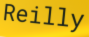
Reilly